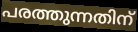
പരത്തുന്നതിന്